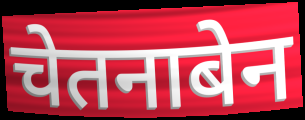
चेतनाबेन